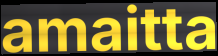
amaitta